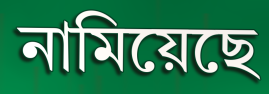
নামিয়েছে